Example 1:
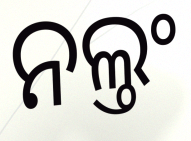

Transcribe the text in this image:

ନଲ୍ତଂ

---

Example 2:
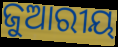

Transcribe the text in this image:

ଜୁଆରୀୟ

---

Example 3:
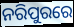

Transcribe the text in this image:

ନରିପୁରରେ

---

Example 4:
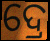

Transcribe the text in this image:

ଦ୍ରେ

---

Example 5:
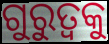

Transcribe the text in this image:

ଗୁରୁତ୍ବକୁ